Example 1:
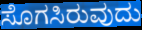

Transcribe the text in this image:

ಸೊಗಸಿರುವುದು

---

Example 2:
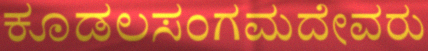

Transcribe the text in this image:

ಕೂಡಲಸಂಗಮದೇವರು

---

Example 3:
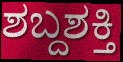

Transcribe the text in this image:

ಶಬ್ದಶಕ್ತಿ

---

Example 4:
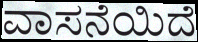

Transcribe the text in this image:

ವಾಸನೆಯಿದೆ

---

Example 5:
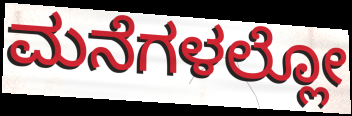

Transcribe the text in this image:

ಮನೆಗಳಲ್ಲೋ